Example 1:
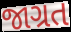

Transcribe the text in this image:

જાગ્રત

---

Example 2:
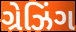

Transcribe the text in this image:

ગ્રેઝિંગ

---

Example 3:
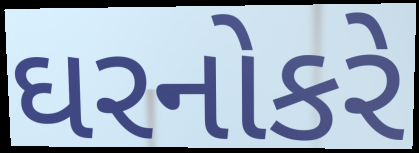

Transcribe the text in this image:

ઘરનોકરે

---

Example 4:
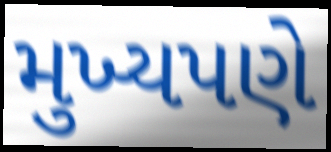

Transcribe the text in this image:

મુખ્યપણે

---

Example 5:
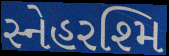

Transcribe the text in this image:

સ્નેહરશ્મિ